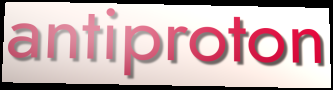
antiproton